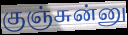
குஞ்சுன்னு